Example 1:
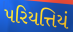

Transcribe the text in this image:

પરિયત્તિયં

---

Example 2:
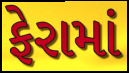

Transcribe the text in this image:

ફેરામાં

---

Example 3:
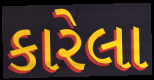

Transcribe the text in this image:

કારેલા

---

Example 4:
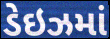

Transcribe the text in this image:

ડેઇઝમાં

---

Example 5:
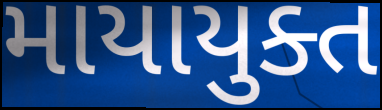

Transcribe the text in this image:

માયાયુક્ત